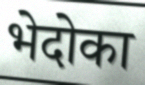
भेदोका